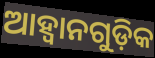
ଆହ୍ବାନଗୁଡ଼ିକ